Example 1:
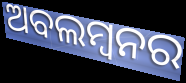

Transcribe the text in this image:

ଅବଲମ୍ବନର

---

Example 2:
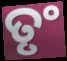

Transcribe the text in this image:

ତୃଂ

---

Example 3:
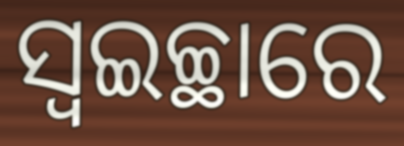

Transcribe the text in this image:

ସ୍ୱଇଚ୍ଛାରେ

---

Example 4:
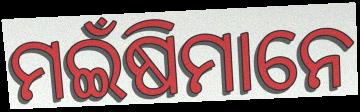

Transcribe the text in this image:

ମଇଁଷିମାନେ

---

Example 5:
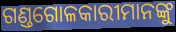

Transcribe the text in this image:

ଗଣ୍ଡଗୋଳକାରୀମାନଙ୍କୁ